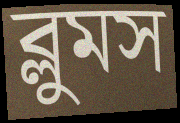
ব্লুমস